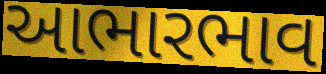
આભારભાવ